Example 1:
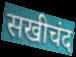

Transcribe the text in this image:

सखीचंद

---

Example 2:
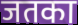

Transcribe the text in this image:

जतका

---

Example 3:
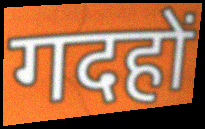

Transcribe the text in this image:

गदहों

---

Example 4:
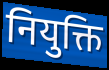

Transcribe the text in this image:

नियुक्ति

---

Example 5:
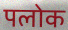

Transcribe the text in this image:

पलोक